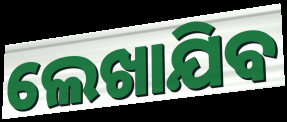
ଲେଖାଯିବ